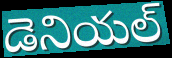
డెనియల్